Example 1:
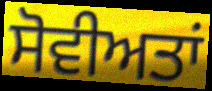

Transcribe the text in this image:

ਸੋਵੀਅਤਾਂ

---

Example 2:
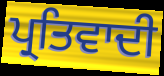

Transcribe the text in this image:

ਪ੍ਰਤਿਵਾਦੀ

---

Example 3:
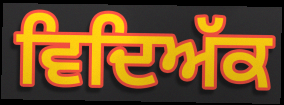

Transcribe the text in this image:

ਵਿਦਿਅੱਕ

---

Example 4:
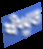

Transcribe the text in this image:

ਖੰਘੂਰ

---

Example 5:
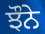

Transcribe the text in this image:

ਝੌਨੇ